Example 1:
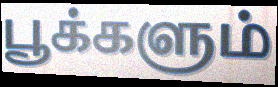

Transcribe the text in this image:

பூக்களும்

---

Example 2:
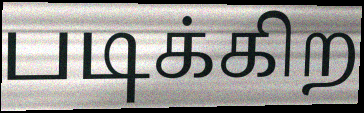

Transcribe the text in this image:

படிக்கிற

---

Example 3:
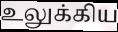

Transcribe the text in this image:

உலுக்கிய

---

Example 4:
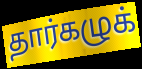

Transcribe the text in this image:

தார்கழுக்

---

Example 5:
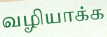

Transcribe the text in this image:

வழியாக்க